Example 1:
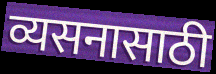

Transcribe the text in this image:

व्यसनासाठी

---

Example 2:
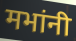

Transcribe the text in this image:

मभांनी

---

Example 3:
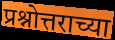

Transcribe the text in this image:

प्रश्नोत्तराच्या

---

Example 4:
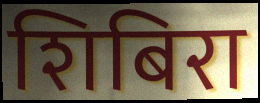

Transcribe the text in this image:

शिबिरा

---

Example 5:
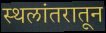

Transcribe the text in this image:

स्थलांतरातून